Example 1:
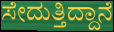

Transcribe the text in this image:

ಸೇದುತ್ತಿದ್ದಾನೆ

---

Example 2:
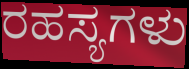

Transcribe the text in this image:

ರಹಸ್ಯಗಳು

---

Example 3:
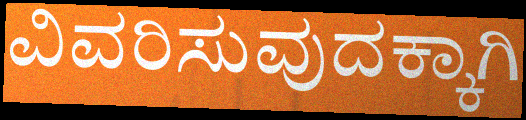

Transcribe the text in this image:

ವಿವರಿಸುವುದಕ್ಕಾಗಿ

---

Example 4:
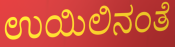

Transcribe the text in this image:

ಉಯಿಲಿನಂತೆ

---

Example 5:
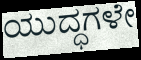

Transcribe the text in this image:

ಯುದ್ಧಗಳೇ